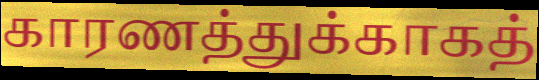
காரணத்துக்காகத்